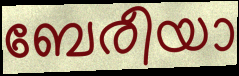
ബേരീയാ